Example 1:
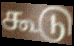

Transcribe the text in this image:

கூடு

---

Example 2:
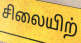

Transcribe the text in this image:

சிலையிற்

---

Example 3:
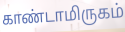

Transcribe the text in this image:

காண்டாமிருகம்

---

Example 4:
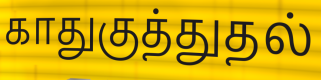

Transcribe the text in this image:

காதுகுத்துதல்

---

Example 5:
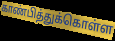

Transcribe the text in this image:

காண்பித்துக்கொள்ள